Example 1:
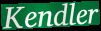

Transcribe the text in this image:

Kendler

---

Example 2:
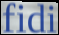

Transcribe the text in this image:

fidi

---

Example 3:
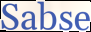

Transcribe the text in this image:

Sabse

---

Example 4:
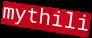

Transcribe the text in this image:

mythili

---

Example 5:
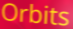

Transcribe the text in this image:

Orbits